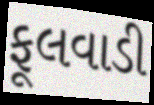
ફૂલવાડી